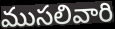
ముసలివారి